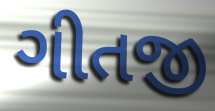
ગીતજી